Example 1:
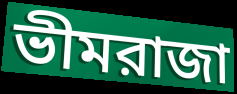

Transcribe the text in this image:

ভীমরাজা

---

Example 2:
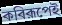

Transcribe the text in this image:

কবিরূপেই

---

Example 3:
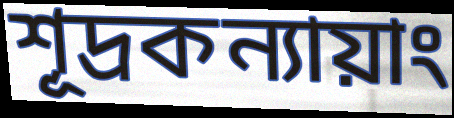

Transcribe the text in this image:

শূদ্রকন্যায়াং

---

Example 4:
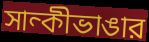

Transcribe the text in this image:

সান্কীভাঙার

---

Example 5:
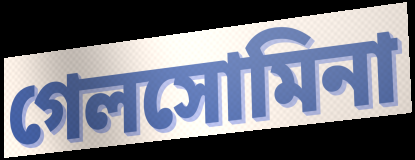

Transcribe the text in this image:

গেলসোমিনা